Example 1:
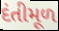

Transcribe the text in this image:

દંતીમૂળ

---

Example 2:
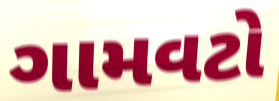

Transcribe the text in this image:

ગામવટો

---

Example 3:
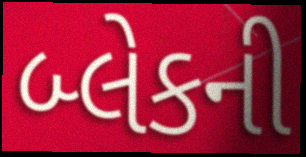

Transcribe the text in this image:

બ્લેકની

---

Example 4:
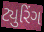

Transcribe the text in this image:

ટ્યુરિંગ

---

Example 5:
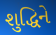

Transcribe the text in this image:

શુદ્ધિને